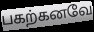
பகற்கனவே